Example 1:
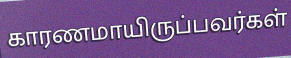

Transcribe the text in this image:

காரணமாயிருப்பவர்கள்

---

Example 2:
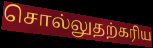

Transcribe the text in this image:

சொல்லுதற்கரிய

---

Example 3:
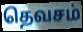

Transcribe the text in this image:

தெவசம்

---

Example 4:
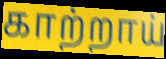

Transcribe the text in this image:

காற்றாய்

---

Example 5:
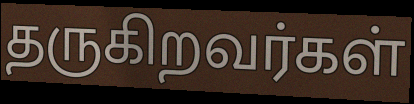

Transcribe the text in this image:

தருகிறவர்கள்